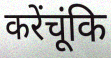
करेंचूंकि